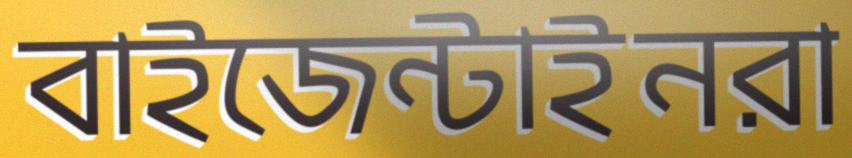
বাইজেন্টাইনরা